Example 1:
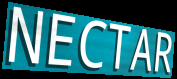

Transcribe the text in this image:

NECTAR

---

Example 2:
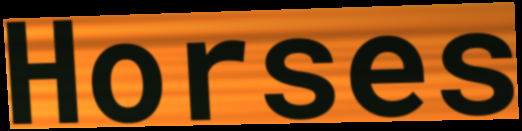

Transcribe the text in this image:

Horses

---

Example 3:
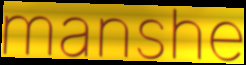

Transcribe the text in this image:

manshe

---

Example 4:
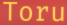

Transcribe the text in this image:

Toru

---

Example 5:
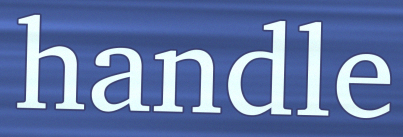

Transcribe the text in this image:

handle